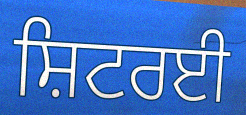
ਸ਼ਿਟਰਈ